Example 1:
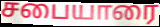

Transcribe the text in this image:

சபையாரை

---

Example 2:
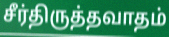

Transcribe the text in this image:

சீர்திருத்தவாதம்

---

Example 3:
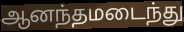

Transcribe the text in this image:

ஆனந்தமடைந்து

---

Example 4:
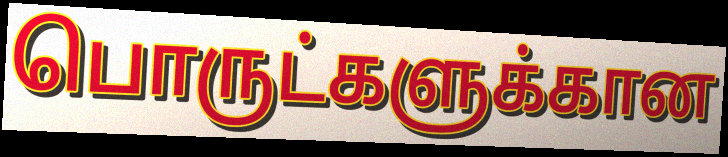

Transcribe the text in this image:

பொருட்களுக்கான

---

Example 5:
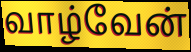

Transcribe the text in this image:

வாழ்வேன்